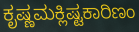
ಕೃಷ್ಣಮಕ್ಲಿಷ್ಟಕಾರಿಣಂ